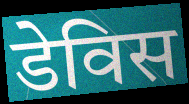
डेविस